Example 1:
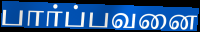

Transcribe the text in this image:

பார்ப்பவனை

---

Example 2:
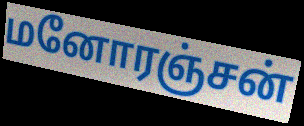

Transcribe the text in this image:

மனோரஞ்சன்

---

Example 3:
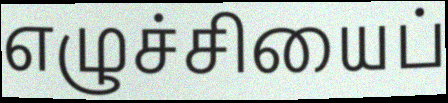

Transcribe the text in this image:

எழுச்சியைப்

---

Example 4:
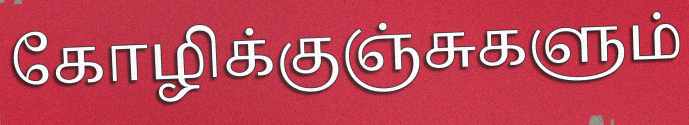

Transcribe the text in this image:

கோழிக்குஞ்சுகளும்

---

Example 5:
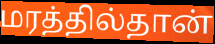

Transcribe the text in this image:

மரத்தில்தான்